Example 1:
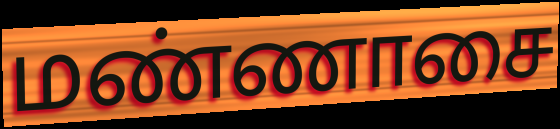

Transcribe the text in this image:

மண்ணாசை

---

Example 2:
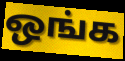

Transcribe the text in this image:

ஒங்க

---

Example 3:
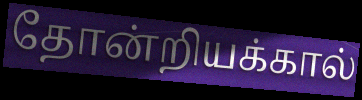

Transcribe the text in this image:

தோன்றியக்கால்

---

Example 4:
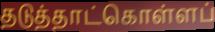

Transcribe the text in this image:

தடுத்தாட்கொள்ளப்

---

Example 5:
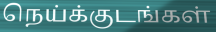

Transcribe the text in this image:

நெய்க்குடங்கள்